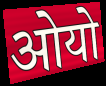
ओयो